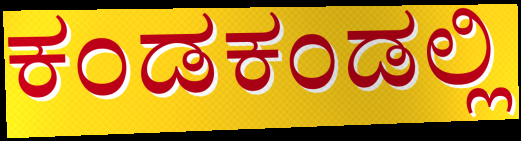
ಕಂಡಕಂಡಲ್ಲಿ